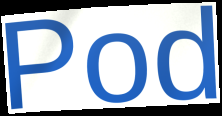
Pod